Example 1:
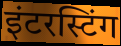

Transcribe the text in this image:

इंटरस्टिंग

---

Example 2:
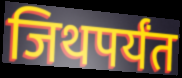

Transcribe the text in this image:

जिथपर्यंत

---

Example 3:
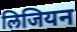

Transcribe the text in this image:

लिजियन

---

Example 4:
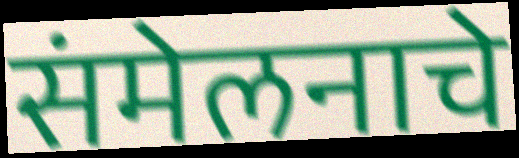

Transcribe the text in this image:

संमेलनाचे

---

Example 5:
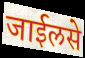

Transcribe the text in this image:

जाईलसे